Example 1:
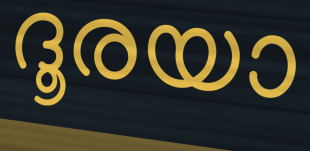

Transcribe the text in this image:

ദൂരയാ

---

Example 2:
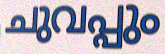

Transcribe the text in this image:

ചുവപ്പും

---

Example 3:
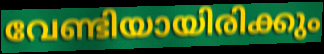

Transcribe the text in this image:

വേണ്ടിയായിരിക്കും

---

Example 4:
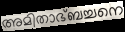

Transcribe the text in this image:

അമിതാഭ്ബച്ചനെ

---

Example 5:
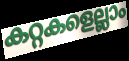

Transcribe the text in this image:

കറ്റകളെല്ലാം